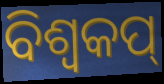
ବିଶ୍ବକପ୍